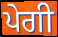
ਪੇਗੀ